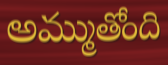
అమ్ముతోంది